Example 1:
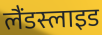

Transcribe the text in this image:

लैंडस्लाइड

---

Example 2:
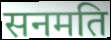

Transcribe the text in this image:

सनमति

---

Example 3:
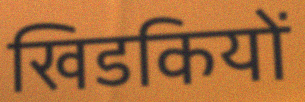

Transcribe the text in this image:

खिडकियों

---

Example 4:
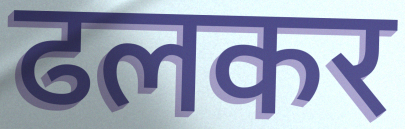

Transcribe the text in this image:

ढलकर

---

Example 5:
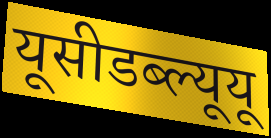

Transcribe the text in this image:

यूसीडब्ल्यूयू